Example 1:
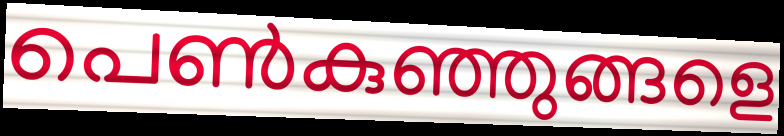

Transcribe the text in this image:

പെൺകുഞ്ഞുങ്ങളെ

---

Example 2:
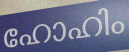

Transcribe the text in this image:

ഹോഹിം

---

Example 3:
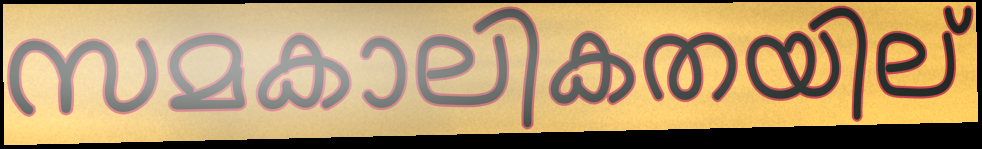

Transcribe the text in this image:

സമകാലികതയില്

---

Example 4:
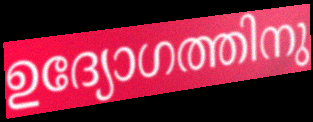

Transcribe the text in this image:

ഉദ്യോഗത്തിനു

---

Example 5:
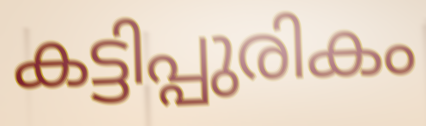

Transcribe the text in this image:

കട്ടിപ്പുരികം